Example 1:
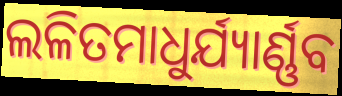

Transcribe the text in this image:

ଲଳିତମାଧୁର୍ଯ୍ୟାର୍ଣ୍ଣବ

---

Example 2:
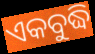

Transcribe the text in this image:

ଏକବୁଦ୍ଧି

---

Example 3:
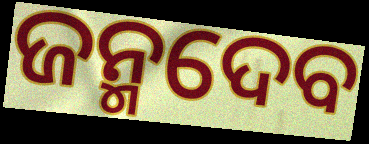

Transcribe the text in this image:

ଜନ୍ମଦେବ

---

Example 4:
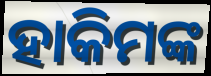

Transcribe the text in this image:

ହାକିମଙ୍କ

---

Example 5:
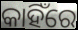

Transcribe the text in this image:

କାହିଁରେ